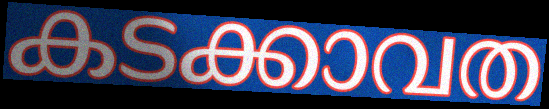
കടക്കാവത